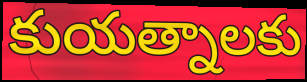
కుయత్నాలకు